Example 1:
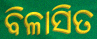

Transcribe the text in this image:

ବିଳାସିତ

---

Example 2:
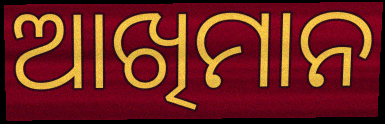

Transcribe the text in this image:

ଆଖିମାନ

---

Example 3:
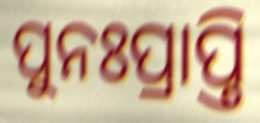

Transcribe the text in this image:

ପୁନଃପ୍ରାପ୍ତି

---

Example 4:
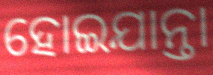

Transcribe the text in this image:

ହୋଇଯାନ୍ତା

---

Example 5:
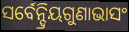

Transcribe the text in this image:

ସର୍ବେନ୍ଦ୍ରିୟଗୁଣାଭାସଂ